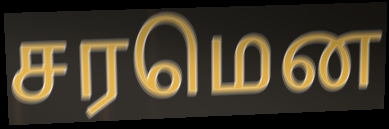
சரமென